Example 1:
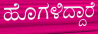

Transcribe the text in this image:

ಹೊಗಳಿದ್ದಾರೆ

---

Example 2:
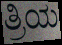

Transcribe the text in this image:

ತ್ರಿಯ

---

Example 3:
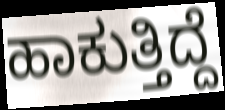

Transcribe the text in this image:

ಹಾಕುತ್ತಿದ್ದೆ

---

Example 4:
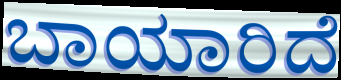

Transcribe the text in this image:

ಬಾಯಾರಿದೆ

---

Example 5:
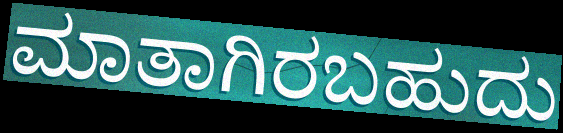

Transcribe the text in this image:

ಮಾತಾಗಿರಬಹುದು